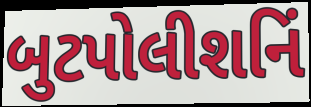
બુટપોલીશનિં